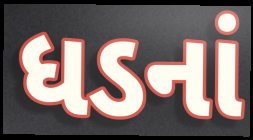
ધડનાં